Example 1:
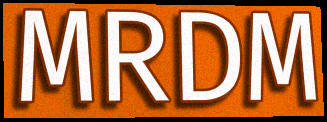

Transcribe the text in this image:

MRDM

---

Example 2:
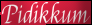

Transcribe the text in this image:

Pidikkum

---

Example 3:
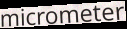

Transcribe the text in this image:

micrometer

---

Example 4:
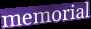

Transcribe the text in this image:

memorial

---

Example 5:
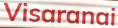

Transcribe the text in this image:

Visaranai